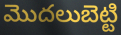
మొదలుబెట్టి